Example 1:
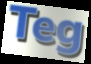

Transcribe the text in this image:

Teg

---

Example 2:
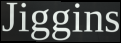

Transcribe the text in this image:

Jiggins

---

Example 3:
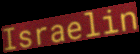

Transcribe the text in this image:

Israelin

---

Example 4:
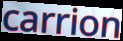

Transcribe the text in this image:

carrion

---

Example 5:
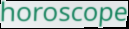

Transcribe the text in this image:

horoscope